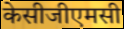
केसीजीएमसी